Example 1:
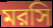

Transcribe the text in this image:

মরসি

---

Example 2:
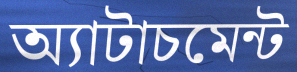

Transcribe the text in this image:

অ্যাটাচমেন্ট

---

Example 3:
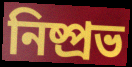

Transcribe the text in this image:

নিষ্প্রভ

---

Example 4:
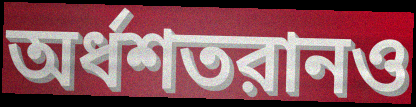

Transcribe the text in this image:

অর্ধশতরানও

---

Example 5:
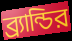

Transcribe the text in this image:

ব্র্যান্ডির